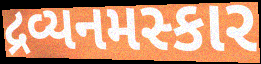
દ્રવ્યનમસ્કાર